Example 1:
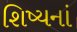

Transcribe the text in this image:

શિષ્યનાં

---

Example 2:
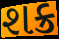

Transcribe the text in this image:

શક્ર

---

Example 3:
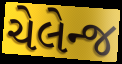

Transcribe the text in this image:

ચેલેન્જ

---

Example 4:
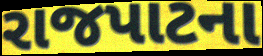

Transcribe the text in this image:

રાજપાટના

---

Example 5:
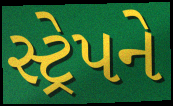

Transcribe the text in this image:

સ્ટ્રેપને